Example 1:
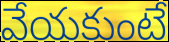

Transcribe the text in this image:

వేయకుంటే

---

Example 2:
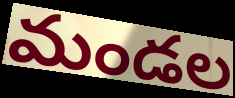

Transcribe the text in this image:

మండల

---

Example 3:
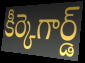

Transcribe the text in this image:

కీర్కెగార్డ్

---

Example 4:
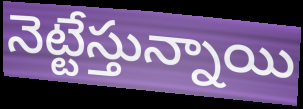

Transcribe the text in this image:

నెట్టేస్తున్నాయి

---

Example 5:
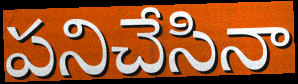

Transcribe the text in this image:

పనిచేసినా